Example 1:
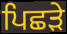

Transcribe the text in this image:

ਪਿਛੜੇ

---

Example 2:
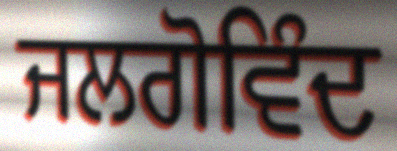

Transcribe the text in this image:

ਜਲਗੋਵਿੰਦ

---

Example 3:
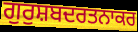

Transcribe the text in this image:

ਗੁਰੁਸ਼ਬਦਰਤਨਾਕਰ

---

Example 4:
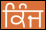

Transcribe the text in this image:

ਕਿੰਜ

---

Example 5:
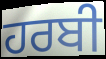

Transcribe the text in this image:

ਹਰਬੀ